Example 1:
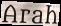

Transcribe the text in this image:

Arah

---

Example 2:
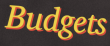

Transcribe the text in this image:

Budgets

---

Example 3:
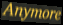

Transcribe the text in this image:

Anymore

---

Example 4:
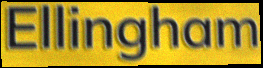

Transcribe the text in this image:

Ellingham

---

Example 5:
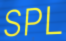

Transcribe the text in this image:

SPL